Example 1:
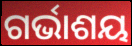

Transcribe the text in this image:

ଗର୍ଭାଶୟ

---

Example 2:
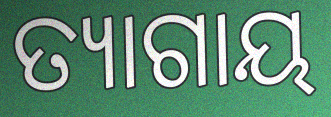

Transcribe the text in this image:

ତ୍ୟାଗାୟ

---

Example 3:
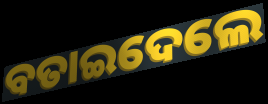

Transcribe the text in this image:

ବତାଇଦେଲେ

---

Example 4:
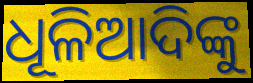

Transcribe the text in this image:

ଧୂଳିଆଦିଙ୍କୁ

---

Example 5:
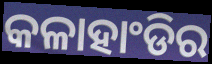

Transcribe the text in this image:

କଳାହାଂଡିର